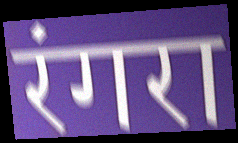
रंगरा